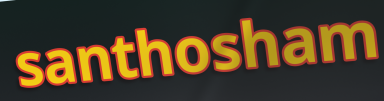
santhosham